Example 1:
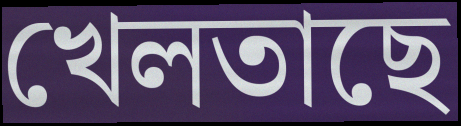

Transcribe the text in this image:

খেলতাছে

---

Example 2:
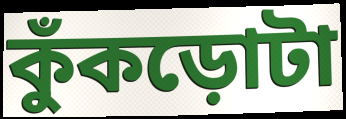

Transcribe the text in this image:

কুঁকড়োটা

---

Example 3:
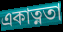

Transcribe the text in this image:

একাত্নতা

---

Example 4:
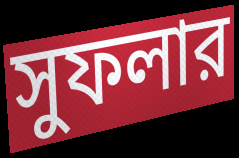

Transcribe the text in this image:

সুফলার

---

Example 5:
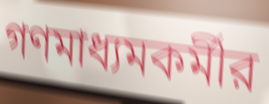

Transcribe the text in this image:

গণমাধ্যমকর্মীর